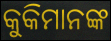
କୁକିମାନଙ୍କ